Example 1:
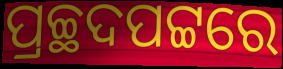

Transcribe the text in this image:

ପ୍ରଚ୍ଛଦପଟ୍ଟରେ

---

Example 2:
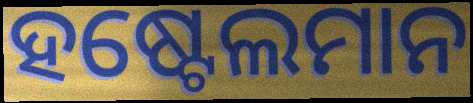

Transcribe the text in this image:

ହଷ୍ଟେଲମାନ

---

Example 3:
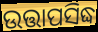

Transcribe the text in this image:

ଉତ୍ତାପସିଦ୍ଧ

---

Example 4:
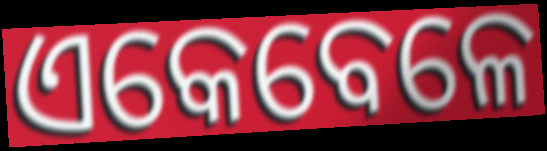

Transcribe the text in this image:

ଏକେବେଳେ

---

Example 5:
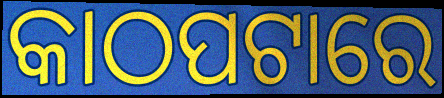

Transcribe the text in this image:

କାଠପଟାରେ